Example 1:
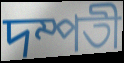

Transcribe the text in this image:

দম্পতী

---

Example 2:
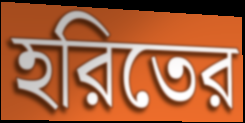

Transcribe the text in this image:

হরিতের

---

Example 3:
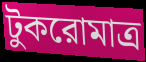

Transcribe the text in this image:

টুকরোমাত্র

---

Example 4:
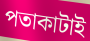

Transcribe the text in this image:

পতাকাটাই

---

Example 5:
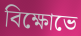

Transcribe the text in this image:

বিক্ষোভে